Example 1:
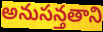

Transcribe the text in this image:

అనుసన్తతాని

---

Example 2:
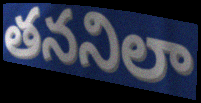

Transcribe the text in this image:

తననిలా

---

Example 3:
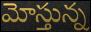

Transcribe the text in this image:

మోస్తున్న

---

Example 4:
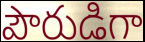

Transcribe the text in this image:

పౌరుడిగా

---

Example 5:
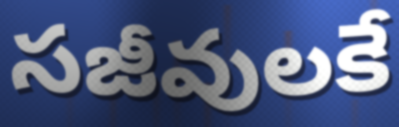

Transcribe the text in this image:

సజీవులకే